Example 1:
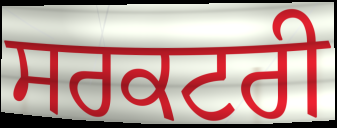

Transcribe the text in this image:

ਸਰਕਟਰੀ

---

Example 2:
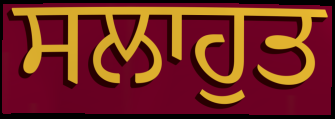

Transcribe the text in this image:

ਸਲਾਹੁਤ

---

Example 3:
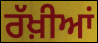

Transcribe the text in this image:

ਰੱਖ਼ੀਆਂ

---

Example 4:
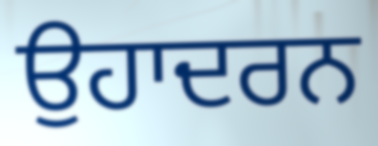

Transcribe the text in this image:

ਉਹਾਦਰਨ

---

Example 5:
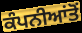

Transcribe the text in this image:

ਕੰਪਨੀਆਂਤੋਂ